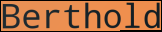
Berthold